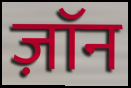
ज़ॉन